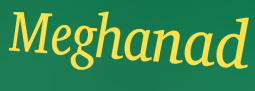
Meghanad